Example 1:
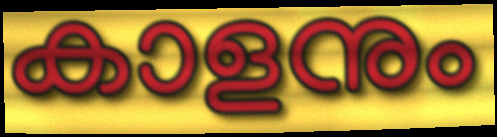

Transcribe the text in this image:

കാളനും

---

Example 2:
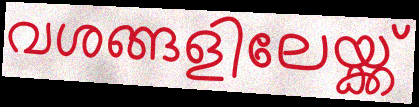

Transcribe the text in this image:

വശങ്ങളിലേയ്ക്ക്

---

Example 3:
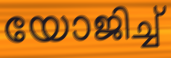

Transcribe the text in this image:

യോജിച്ച്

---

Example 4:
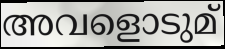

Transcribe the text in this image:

അവളൊടുമ്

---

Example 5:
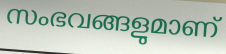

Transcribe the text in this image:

സംഭവങ്ങളുമാണ്